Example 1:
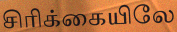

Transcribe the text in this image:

சிரிக்கையிலே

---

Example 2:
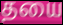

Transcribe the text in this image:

தயை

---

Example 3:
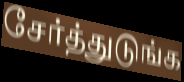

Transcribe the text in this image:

சேர்த்துடுங்க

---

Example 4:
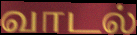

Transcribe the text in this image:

வாடல்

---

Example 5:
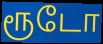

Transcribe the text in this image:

ரூடோ